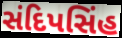
સંદિપસિંહ